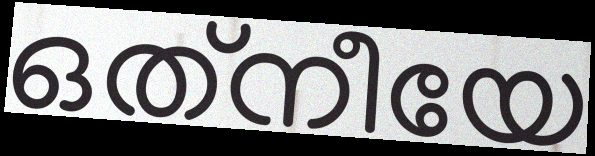
ഒത്‌നീയേ